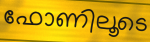
ഫോണിലൂടെ